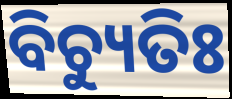
ବିଚ୍ୟୁତିଃ